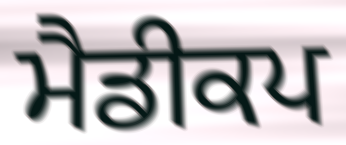
ਮੈਡੀਕਪ